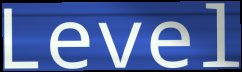
Level